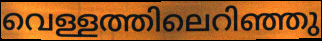
വെള്ളത്തിലെറിഞ്ഞു